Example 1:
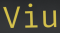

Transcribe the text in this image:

Viu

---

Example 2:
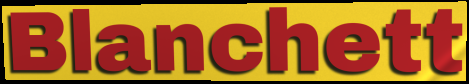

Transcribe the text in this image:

Blanchett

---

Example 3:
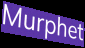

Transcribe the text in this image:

Murphet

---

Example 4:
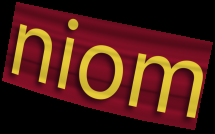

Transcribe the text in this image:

niom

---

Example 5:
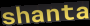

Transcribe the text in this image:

shanta